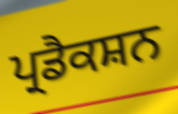
ਪ੍ਰਡੈਕਸ਼ਨ